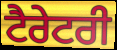
ਟੈਰੇਟਰੀ